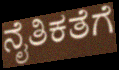
ನೈತಿಕತೆಗೆ